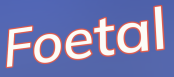
Foetal